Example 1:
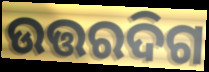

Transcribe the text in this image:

ଉତ୍ତରଦିଗ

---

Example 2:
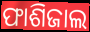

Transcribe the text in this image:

ଫାଶିଜାଲ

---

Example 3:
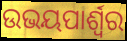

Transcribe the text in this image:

ଉଭୟପାର୍ଶ୍ୱର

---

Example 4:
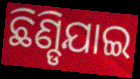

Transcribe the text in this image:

ଛିଣ୍ଡିଯାଇ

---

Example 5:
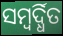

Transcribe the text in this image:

ସମ୍ବର୍ଦ୍ଧିତ